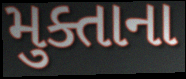
મુક્તાના